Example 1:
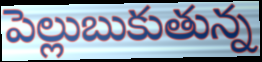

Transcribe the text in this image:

పెల్లుబుకుతున్న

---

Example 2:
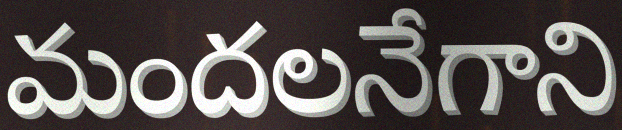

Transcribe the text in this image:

మందలనేగాని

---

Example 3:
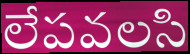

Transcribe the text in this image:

లేపవలసి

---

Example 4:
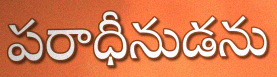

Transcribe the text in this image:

పరాధీనుడను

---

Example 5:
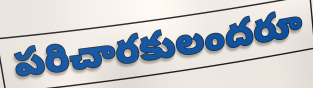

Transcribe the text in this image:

పరిచారకులందరూ